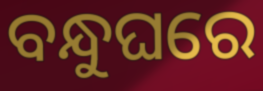
ବନ୍ଧୁଘରେ